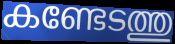
കണ്ടേടത്തു